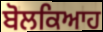
ਬੋਲਕਿਆਹ